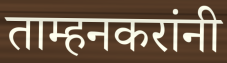
ताम्हनकरांनी